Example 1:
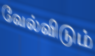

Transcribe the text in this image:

வேல்விடும்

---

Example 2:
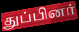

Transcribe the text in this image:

துப்பினர்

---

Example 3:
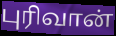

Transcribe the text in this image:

புரிவான்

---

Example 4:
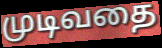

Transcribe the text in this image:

முடிவதை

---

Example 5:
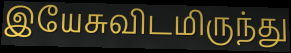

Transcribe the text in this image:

இயேசுவிடமிருந்து